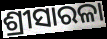
ଶ୍ରୀସାରଳା